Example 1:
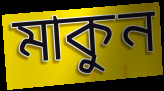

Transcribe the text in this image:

মাকুন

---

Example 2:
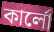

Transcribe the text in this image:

কার্লো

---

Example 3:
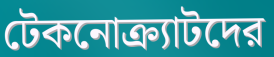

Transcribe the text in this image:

টেকনোক্র্যাটদের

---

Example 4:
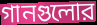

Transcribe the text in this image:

গানগুলোর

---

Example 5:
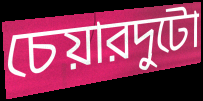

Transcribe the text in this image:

চেয়ারদুটো